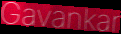
Gavankar